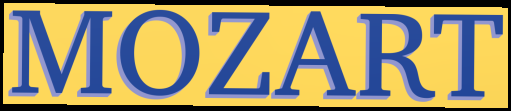
MOZART